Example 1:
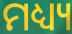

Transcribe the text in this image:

ମଧ୍ୟ୍ୟ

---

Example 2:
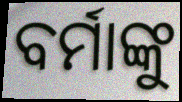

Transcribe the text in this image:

ବର୍ମାଙ୍କୁ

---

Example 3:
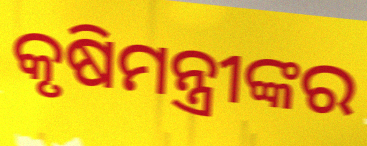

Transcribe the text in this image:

କୃଷିମନ୍ତ୍ରୀଙ୍କର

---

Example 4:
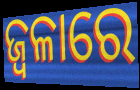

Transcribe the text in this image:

ଜ୍ୱଳାରେ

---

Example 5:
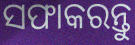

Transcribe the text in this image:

ସଫାକରନ୍ତୁ